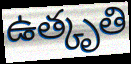
ఉత్కృతి